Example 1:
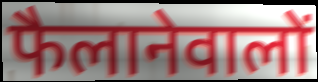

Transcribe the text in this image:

फैलानेवालों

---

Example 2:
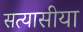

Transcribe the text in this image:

सत्यासीया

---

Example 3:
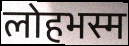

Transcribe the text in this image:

लोहभस्म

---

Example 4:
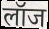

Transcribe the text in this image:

लॉज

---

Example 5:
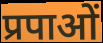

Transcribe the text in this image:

प्रपाओं